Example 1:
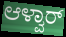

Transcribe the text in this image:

ಆಳ್ವಾರ್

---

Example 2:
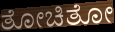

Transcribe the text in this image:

ತೋಚಿತೋ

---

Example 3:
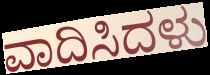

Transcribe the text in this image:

ವಾದಿಸಿದಳು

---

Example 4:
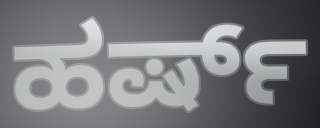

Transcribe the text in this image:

ಹರ್ಷ್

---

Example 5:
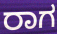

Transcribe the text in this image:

ರಾಗ